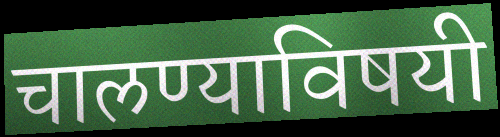
चालण्याविषयी